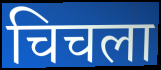
चिचला